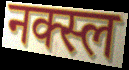
नक्स्ल